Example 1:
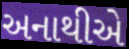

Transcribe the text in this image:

અનાથીએ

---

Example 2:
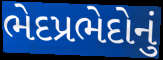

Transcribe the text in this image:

ભેદપ્રભેદોનું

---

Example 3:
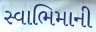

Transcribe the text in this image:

સ્વાભિમાની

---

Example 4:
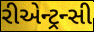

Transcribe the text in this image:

રીએન્ટ્રન્સી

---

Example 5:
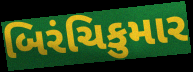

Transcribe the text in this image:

બિરંચિકુમાર